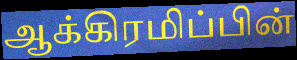
ஆக்கிரமிப்பின்